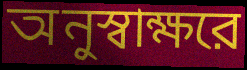
অনুস্বাক্ষরে